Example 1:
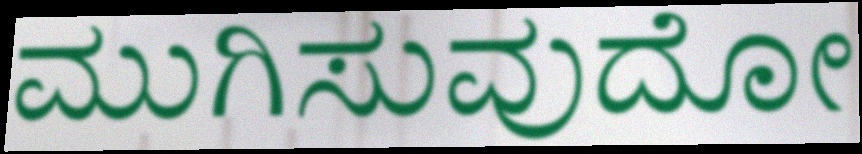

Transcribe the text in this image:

ಮುಗಿಸುವುದೋ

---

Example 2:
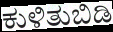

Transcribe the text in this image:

ಕುಳಿತುಬಿಡಿ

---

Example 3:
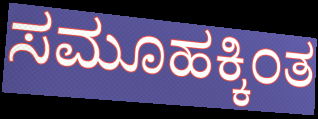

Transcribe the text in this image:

ಸಮೂಹಕ್ಕಿಂತ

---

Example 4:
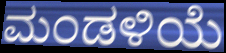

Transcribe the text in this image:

ಮಂಡಳಿಯೆ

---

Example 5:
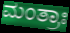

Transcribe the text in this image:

ಮಂತ್ರಾಃ